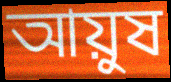
আয়ুষ